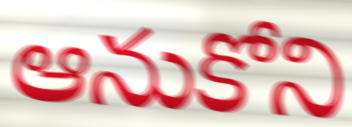
ఆనుకోని